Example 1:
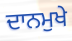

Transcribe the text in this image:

ਦਾਨਮੁਖੇ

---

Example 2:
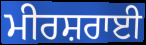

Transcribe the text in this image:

ਮੀਰਸ਼ਰਾਈ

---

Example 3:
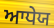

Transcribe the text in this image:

ਆਧੇਯ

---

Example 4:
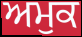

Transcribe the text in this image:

ਅਮੁਕ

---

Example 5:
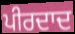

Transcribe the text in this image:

ਪੀਰਦਾਦ